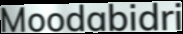
Moodabidri